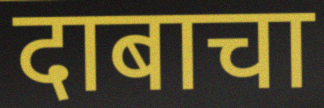
दाबाचा